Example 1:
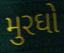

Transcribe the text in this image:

મુરઘો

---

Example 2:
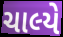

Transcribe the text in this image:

ચાલ્યે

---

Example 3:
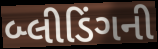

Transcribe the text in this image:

બ્લીડિંગની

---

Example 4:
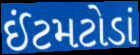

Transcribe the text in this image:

ઈંટમટોડાં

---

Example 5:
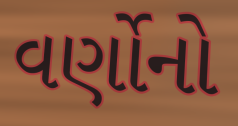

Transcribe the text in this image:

વર્ણોનો